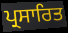
ਪ੍ਰਸਾਰਿਤ